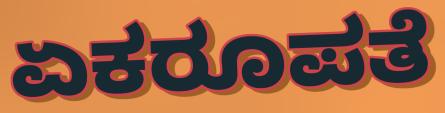
ಏಕರೂಪತೆ